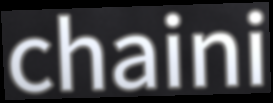
chaini